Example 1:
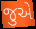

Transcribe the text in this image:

જુએ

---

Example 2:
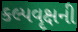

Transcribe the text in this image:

કલ્પવૃક્ષની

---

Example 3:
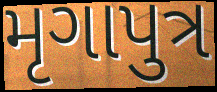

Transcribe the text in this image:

મૃગાપુત્ર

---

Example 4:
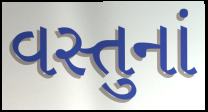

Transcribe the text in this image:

વસ્તુનાં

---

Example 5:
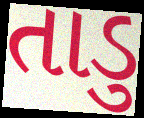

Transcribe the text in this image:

તાડુ